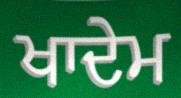
ਖਾਦੇਮ